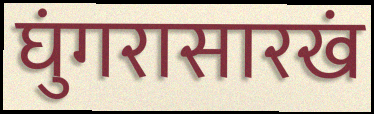
घुंगरासारखं